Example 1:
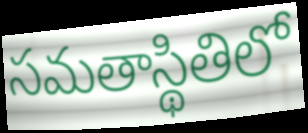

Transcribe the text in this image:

సమతాస్థితిలో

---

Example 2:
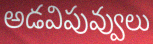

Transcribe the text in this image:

అడవిపువ్వులు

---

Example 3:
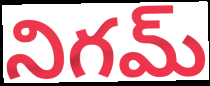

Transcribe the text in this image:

నిగమ్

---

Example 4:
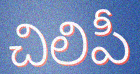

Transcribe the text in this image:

చిలిపీ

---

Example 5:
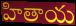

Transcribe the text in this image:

హితాయ